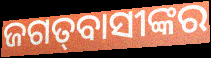
ଜଗତ୍‍ବାସୀଙ୍କର